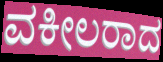
ವಕೀಲರಾದ